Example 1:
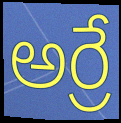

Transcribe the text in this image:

అర్రే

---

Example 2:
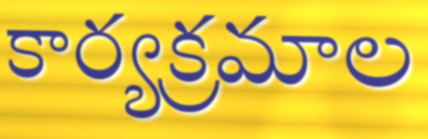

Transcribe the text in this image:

కార్యక్రమాల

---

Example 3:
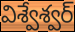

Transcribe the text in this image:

విశ్వేశ్వర్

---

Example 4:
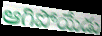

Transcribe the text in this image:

ఆగిపోయేడు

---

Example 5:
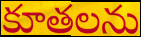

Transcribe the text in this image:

కూతలను